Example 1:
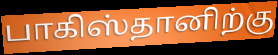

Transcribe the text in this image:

பாகிஸ்தானிற்கு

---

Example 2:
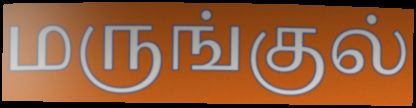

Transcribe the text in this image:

மருங்குல்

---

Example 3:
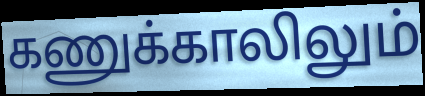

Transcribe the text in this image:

கணுக்காலிலும்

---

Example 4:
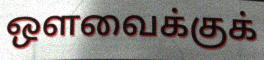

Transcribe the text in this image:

ஔவைக்குக்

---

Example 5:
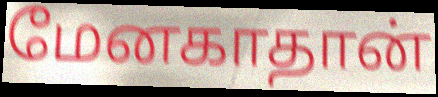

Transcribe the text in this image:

மேனகாதான்